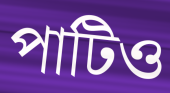
পাটিও